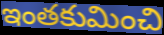
ఇంతకుమించి